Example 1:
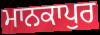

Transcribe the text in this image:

ਮਾਨਕਾਪੁਰ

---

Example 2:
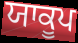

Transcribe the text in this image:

ਯਾਕੂਪ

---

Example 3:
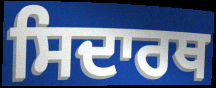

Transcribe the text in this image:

ਸਿਦਾਰਥ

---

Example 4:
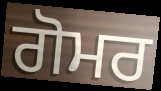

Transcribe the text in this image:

ਗੋਮਰ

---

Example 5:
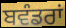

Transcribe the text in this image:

ਬਵੰਡਰਾਂ